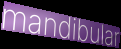
mandibular